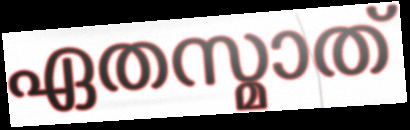
ഏതസ്മാത്